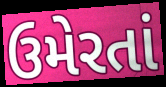
ઉમેરતાં